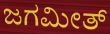
ಜಗಮೀತ್